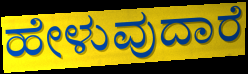
ಹೇಳುವುದಾರೆ